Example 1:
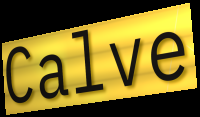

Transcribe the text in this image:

Calve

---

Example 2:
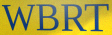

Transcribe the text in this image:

WBRT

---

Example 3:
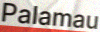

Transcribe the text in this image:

Palamau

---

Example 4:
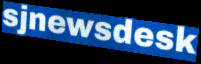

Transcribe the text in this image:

sjnewsdesk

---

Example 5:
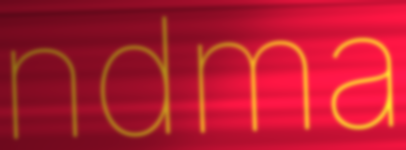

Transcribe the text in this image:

ndma